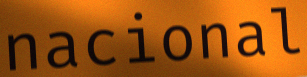
nacional